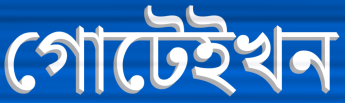
গোটেইখন